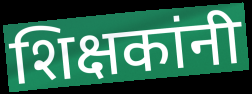
शिक्षकांनी